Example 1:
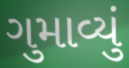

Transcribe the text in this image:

ગુમાવ્યું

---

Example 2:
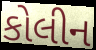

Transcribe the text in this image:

કોલીન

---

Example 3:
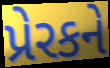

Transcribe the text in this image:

પ્રેરકને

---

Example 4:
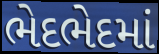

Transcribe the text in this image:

ભેદભેદમાં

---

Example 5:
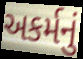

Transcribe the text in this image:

અકર્મનું